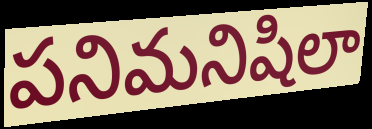
పనిమనిషిలా